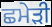
ਛਮੇੜੀ